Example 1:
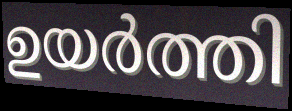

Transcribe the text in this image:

ഉയർത്തി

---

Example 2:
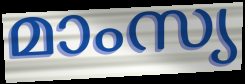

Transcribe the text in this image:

മാംസ്യ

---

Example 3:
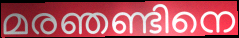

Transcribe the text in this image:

മരഞണ്ടിനെ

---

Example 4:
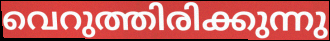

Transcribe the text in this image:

വെറുത്തിരിക്കുന്നു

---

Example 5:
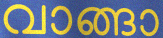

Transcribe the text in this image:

വാങ്ങാ